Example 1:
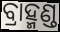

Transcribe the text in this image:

ବ୍ରାହ୍ମଣ୍ଡ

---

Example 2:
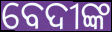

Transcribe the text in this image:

ବେଦୀଙ୍କ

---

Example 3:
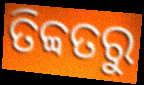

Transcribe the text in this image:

ତିବ୍ବତରୁ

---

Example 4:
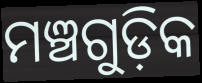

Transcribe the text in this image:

ମଞ୍ଚଗୁଡ଼ିକ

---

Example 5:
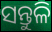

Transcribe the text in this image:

ସନ୍ତୁଳି